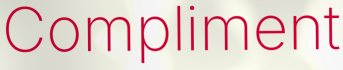
Compliment